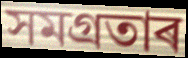
সমগ্ৰতাৰ